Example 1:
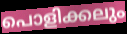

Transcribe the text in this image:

പൊളിക്കലും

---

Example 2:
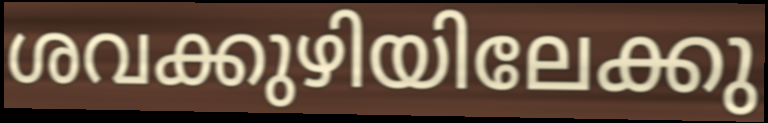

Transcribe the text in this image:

ശവക്കുഴിയിലേക്കു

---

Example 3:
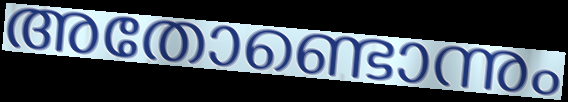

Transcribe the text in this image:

അതോണ്ടൊന്നും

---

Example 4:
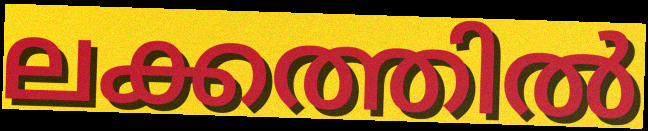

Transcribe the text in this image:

ലക്കത്തിൽ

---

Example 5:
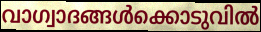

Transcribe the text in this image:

വാഗ്വാദങ്ങൾക്കൊടുവിൽ